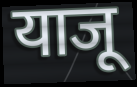
याजू